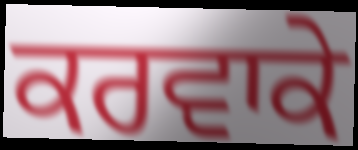
ਕਰਵਾਕੇ